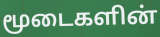
மூடைகளின்